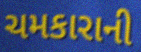
ચમકારાની